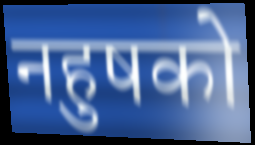
नहुषको